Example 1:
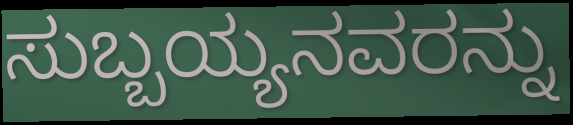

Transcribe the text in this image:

ಸುಬ್ಬಯ್ಯನವರನ್ನು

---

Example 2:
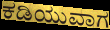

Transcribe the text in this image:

ಕಡಿಯುವಾಗ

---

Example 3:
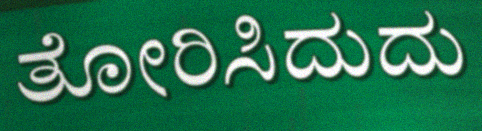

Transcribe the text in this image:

ತೋರಿಸಿದುದು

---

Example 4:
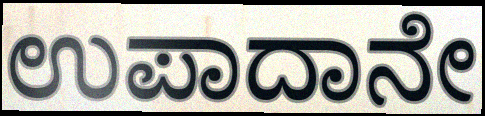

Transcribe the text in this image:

ಉಪಾದಾನೇ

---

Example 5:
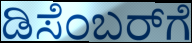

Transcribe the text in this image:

ಡಿಸೆಂಬರ್‌ಗೆ